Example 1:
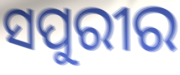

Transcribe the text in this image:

ସପୁରୀର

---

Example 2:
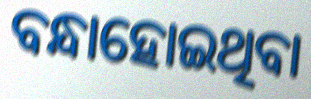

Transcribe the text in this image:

ବନ୍ଧାହୋଇଥିବା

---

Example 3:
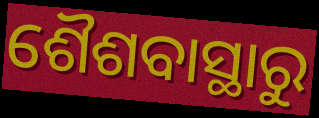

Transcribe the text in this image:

ଶୈଶବାସ୍ଥାରୁ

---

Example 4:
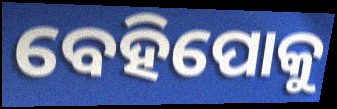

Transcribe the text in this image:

ବେହିପୋକୁ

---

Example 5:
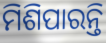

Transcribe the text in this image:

ମିଶିପାରନ୍ତି